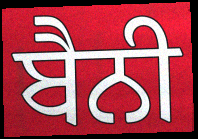
ਬੈਨੀ